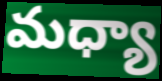
మధ్యా